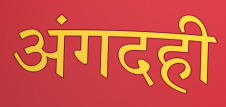
अंगदही